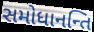
સમોધાનન્તિ